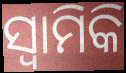
ସ୍ୱାମିକି